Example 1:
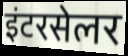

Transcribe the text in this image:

इंटरसेलर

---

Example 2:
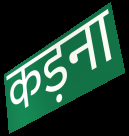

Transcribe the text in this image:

कड़ना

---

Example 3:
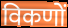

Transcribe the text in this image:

विकणों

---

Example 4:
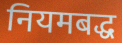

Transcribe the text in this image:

नियमबद्ध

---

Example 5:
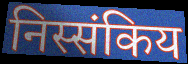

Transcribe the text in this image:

निस्संकिय